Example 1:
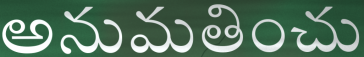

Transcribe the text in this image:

అనుమతించు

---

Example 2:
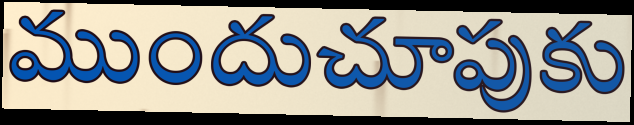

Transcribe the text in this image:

ముందుచూపుకు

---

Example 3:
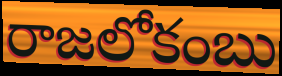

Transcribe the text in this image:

రాజలోకంబు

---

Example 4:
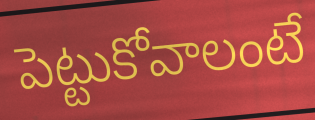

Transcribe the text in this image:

పెట్టుకోవాలంటే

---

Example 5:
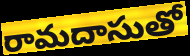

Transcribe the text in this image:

రామదాసుతో